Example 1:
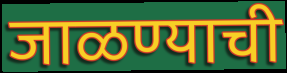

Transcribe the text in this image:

जाळण्याची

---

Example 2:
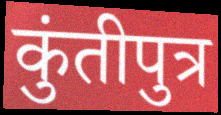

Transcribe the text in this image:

कुंतीपुत्र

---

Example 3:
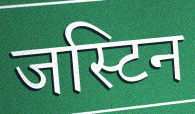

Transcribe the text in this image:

जस्टिन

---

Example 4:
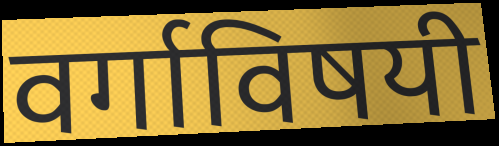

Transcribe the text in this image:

वर्गाविषयी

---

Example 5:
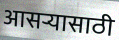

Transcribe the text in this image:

आसऱ्यासाठी